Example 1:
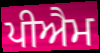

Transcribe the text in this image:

ਪੀਐਮ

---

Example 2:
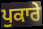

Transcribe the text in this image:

ਪੁਕਾਰੇ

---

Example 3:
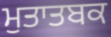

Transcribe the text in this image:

ਮੁਤਾਤਬਕ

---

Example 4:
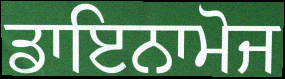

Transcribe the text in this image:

ਡਾਇਨਾਮੋਜ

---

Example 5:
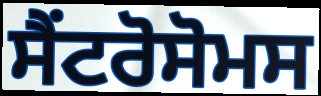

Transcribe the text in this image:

ਸੈਂਟਰੋਸੋਮਸ